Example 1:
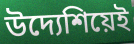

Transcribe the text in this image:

উদ্যেশিয়েই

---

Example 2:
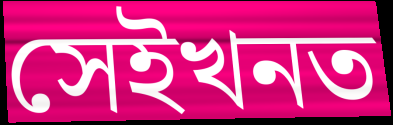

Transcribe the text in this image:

সেইখনত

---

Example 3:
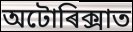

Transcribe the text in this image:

অটোৰিক্সাত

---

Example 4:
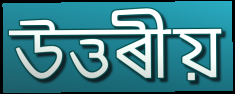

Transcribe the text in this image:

উত্তৰীয়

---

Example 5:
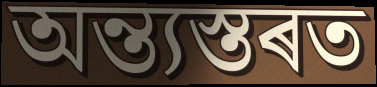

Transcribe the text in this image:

অন্ত্যস্তৰত